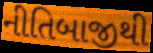
નીતિબાજીથી